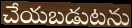
చేయబడుటను